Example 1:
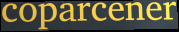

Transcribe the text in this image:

coparcener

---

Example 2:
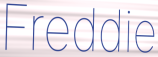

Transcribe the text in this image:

Freddie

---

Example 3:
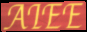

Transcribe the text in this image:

AIEE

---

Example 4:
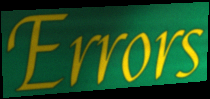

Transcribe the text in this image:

Errors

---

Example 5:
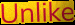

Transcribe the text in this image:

Unlike